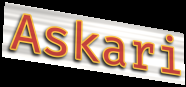
Askari